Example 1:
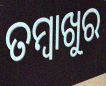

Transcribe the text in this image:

ତମ୍ବାଖୁର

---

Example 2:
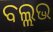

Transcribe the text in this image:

ବଲ୍ଲଭ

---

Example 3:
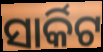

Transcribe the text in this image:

ସାର୍କିଟ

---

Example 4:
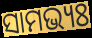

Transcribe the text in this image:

ସାମଭ୍ୟଃ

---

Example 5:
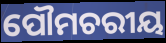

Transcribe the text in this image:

ପୌମଚରୀୟ